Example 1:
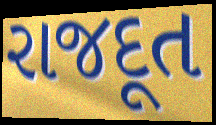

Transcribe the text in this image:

રાજદૂત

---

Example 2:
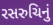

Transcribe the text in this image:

રસરુચિનું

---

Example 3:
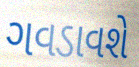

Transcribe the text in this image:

ગવડાવશે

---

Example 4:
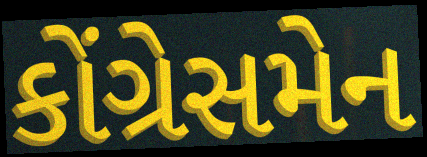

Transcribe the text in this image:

કોંગ્રેસમેન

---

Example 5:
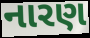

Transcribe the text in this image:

નારણ